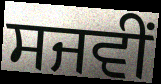
ਸਜਵੀਂ